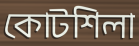
কোটশিলা